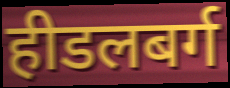
हीडलबर्ग